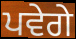
ਪਵੇਗੇ